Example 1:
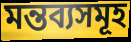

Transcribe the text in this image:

মন্তব্যসমূহ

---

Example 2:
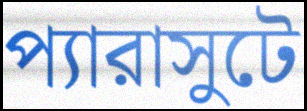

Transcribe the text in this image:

প্যারাসুটে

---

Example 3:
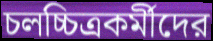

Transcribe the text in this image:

চলচ্চিত্রকর্মীদের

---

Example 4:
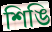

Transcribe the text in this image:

শিঙি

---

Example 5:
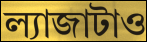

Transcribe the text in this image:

ল্যাজাটাও